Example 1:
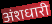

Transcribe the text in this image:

अंशधारी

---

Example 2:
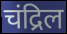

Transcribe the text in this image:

चंद्रिल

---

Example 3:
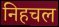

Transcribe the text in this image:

निहचल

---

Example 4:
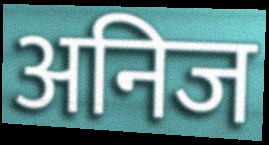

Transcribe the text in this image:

अनिज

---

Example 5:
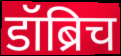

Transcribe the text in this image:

डॉब्रिच